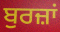
ਬੁਰਜ਼ਾਂ